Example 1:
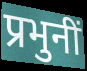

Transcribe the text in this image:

प्रभुनीं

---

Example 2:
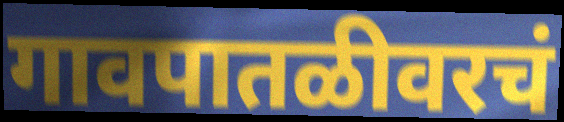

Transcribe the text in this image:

गावपातळीवरचं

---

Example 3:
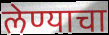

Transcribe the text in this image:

लेण्याचा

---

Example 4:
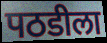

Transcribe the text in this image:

पठडीला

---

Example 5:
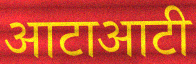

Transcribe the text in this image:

आटाआटी